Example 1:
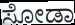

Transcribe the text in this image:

ಸೋಡಾ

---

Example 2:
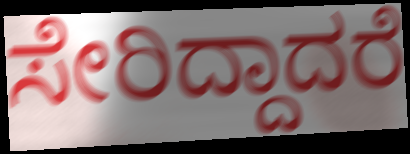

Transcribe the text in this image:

ಸೇರಿದ್ದಾದರೆ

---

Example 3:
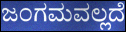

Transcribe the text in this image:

ಜಂಗಮವಲ್ಲದೆ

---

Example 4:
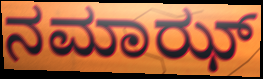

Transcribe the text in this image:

ನಮಾಝ್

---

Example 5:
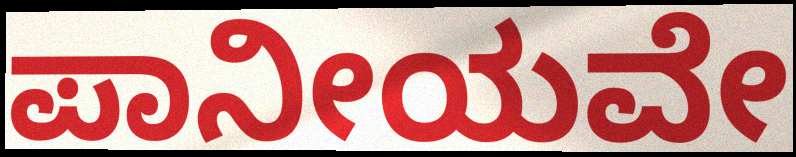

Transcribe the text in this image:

ಪಾನೀಯವೇ